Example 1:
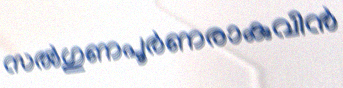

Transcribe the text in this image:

സൽഗുണപൂർണരാകുവിൻ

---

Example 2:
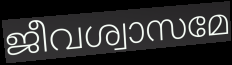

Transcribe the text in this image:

ജീവശ്വാസമേ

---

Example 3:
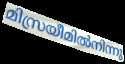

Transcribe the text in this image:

മിസ്രയീമിൽനിന്നു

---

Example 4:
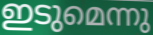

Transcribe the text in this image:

ഇടുമെന്നു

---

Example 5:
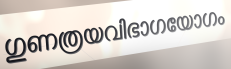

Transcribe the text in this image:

ഗുണത്രയവിഭാഗയോഗം